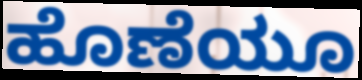
ಹೊಣೆಯೂ